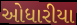
ઓધારીયા